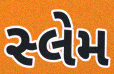
સ્લેમ